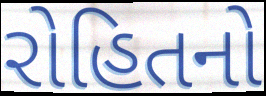
રોહિતનો